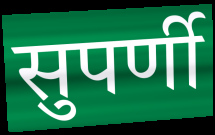
सुपर्णी